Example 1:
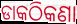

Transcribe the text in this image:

ଡାକଠିକଣା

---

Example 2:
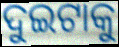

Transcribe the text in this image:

ଦୁଇଟାକୁ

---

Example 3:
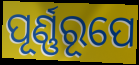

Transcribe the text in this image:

ପୂର୍ଣ୍ଣରୂପେ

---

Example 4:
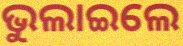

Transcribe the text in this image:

ଭୁଲାଇଲେ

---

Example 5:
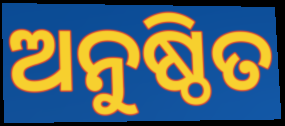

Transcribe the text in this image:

ଅନୁଷ୍ଠିତ